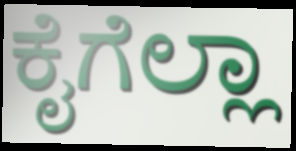
ಕೈಗೆಲ್ಲಾ